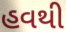
હવથી